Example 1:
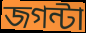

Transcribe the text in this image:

জগন্টা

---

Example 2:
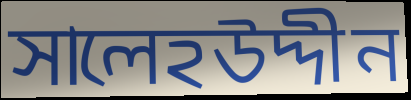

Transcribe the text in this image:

সালেহউদ্দীন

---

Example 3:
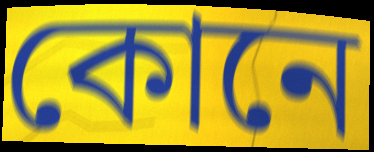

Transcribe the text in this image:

কোনে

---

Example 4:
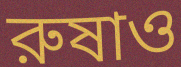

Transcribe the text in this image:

রুষাও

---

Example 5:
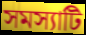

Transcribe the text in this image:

সমস্যাটি